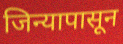
जिन्यापासून